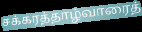
சக்கரத்தாழ்வாரைத்